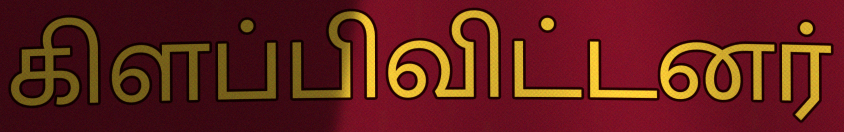
கிளப்பிவிட்டனர்